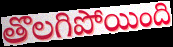
తొలగిపోయింది